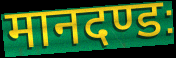
मानदण्डः